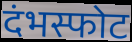
दंभस्फोट